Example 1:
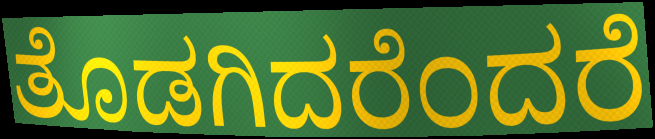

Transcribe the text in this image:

ತೊಡಗಿದರೆಂದರೆ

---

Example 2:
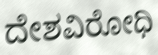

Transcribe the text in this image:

ದೇಶವಿರೋಧಿ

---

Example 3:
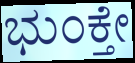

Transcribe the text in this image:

ಭುಂಕ್ತೇ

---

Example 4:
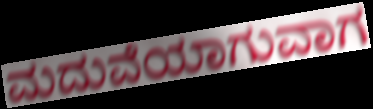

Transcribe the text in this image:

ಮದುವೆಯಾಗುವಾಗ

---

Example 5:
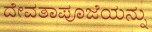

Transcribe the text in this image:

ದೇವತಾಪೂಜೆಯನ್ನು